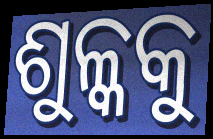
ଶୁଳ୍କକୁ